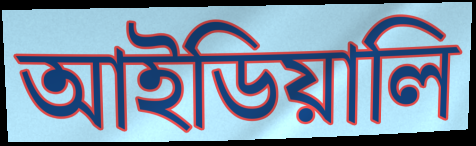
আইডিয়ালি